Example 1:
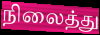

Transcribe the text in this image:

நிலைத்து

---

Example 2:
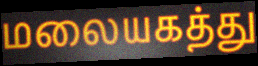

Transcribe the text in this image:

மலையகத்து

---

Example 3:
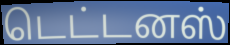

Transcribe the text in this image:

டெட்டனஸ்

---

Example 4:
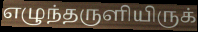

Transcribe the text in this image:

எழுந்தருளியிருக்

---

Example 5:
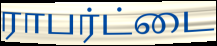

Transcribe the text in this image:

ராபர்ட்டை